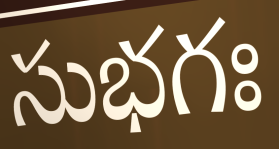
సుభగః